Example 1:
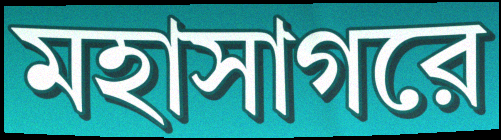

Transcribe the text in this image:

মহাসাগরে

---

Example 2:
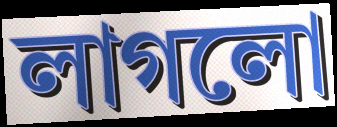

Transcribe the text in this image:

লাগলো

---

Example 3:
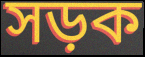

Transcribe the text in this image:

সড়ক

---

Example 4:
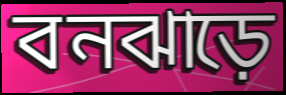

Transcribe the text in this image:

বনঝাড়ে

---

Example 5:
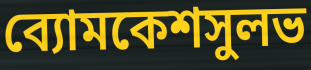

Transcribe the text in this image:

ব্যোমকেশসুলভ